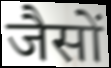
जैसों